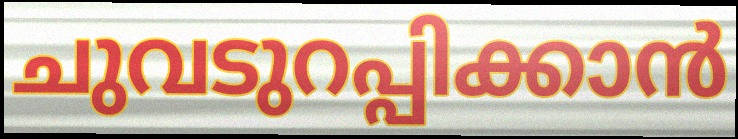
ചുവടുറപ്പിക്കാൻ